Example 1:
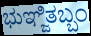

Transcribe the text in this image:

ಭುಞ್ಜಿತಬ್ಬಂ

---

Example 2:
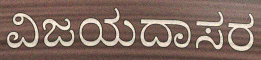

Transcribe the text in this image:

ವಿಜಯದಾಸರ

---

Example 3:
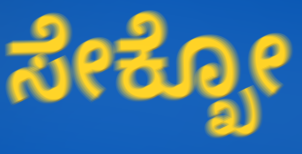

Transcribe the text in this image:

ಸೇಕ್ಖೋ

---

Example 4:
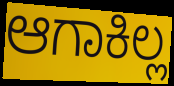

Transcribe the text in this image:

ಆಗಾಕಿಲ್ಲ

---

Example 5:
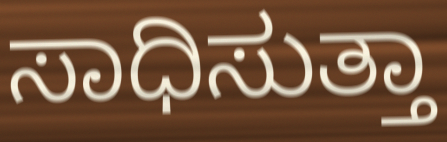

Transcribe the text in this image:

ಸಾಧಿಸುತ್ತಾ